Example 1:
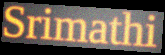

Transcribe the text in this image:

Srimathi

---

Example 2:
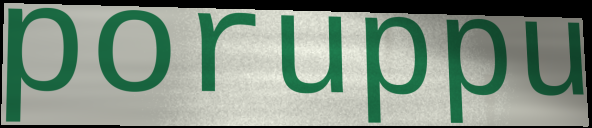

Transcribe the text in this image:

poruppu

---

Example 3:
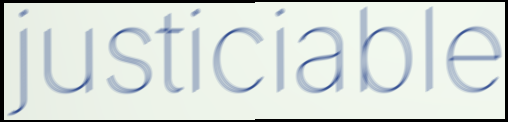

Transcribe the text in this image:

justiciable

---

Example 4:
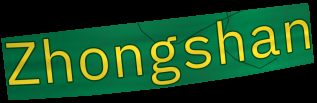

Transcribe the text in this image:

Zhongshan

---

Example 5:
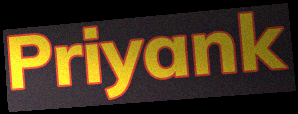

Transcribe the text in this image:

Priyank